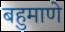
बहुमाणे